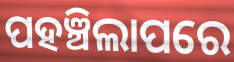
ପହଞ୍ଚିଲାପରେ